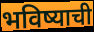
भविष्याची